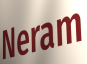
Neram